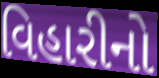
વિહારીનો